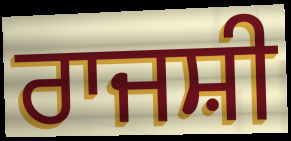
ਰਾਜਸ਼ੀ